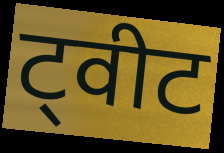
ट्‌वीट